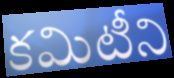
కమిటీని